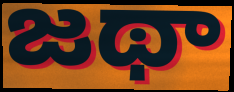
జథా